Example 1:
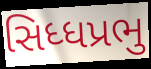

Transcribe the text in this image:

સિધ્ધપ્રભુ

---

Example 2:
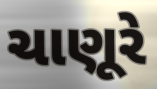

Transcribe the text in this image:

ચાણૂરે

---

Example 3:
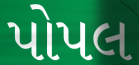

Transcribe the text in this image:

પોપલ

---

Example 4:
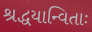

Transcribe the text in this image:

શ્રદ્ધયાન્વિતાઃ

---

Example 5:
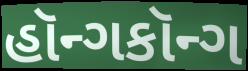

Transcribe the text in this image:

હૉન્ગકૉન્ગ